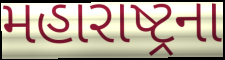
મહારાષ્ટ્રના